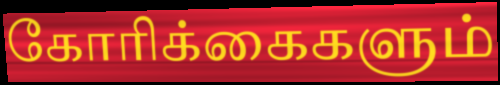
கோரிக்கைகளும்